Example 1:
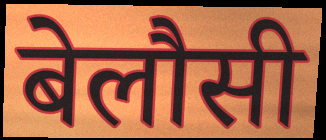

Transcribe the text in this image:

बेलौसी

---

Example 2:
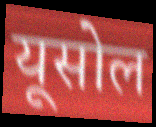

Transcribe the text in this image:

यूसोल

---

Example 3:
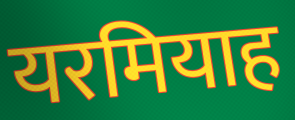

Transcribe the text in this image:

यरमियाह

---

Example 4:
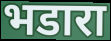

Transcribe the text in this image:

भडारा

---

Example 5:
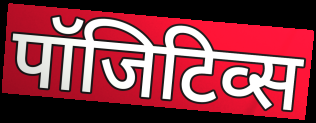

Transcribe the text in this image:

पॉजिटिव्स